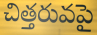
చిత్తరువపై